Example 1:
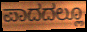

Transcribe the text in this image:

ಪಾದದಲ್ಲೂ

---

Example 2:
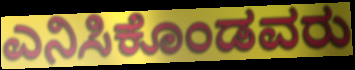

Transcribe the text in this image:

ಎನಿಸಿಕೊಂಡವರು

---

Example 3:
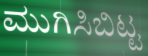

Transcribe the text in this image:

ಮುಗಿಸಿಬಿಟ್ಟ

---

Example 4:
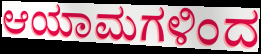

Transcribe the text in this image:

ಆಯಾಮಗಳಿಂದ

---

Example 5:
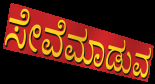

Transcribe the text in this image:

ಸೇವೆಮಾಡುವ